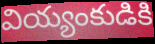
వియ్యంకుడికి